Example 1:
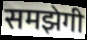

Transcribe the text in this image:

समझेगी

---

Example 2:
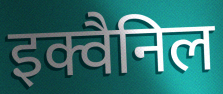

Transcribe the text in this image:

इक्वैनिल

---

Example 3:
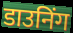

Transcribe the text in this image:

डाउनिंग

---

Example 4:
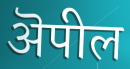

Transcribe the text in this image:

ऄपील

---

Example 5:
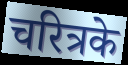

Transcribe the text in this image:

चरित्रके